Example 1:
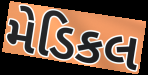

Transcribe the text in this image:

મેડિકલ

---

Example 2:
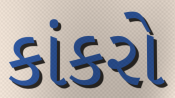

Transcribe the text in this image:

કાંકરો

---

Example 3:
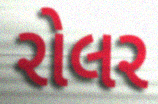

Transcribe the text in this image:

રોલર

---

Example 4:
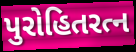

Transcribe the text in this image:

પુરોહિતરત્ન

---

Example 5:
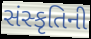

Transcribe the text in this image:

સંસ્કૃતિની